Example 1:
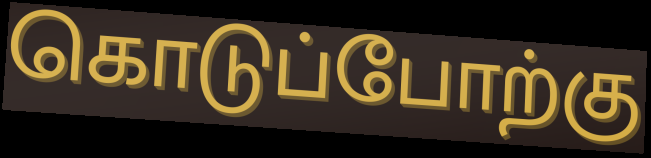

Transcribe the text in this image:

கொடுப்போற்கு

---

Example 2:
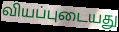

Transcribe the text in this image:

வியப்புடையது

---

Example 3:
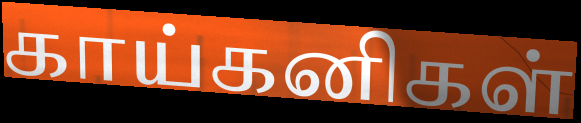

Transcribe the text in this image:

காய்கனிகள்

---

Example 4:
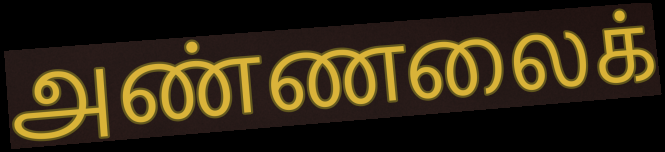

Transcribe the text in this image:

அண்ணலைக்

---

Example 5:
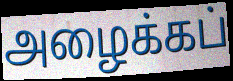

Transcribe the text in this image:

அழைக்கப்